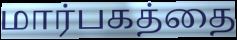
மார்பகத்தை